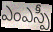
ఎంఎస్పీ